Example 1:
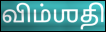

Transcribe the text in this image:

விம்ஶதி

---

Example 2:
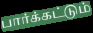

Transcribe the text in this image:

பார்க்கட்டும்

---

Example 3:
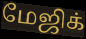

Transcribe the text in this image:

மேஜிக்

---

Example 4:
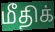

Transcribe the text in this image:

மீதிக்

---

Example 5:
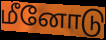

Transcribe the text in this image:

மீனோடு